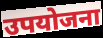
उपयोजना